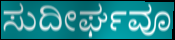
ಸುದೀರ್ಘವೂ